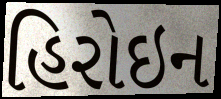
હિરોઇન